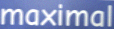
maximal